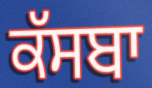
ਕੱਸਬਾ